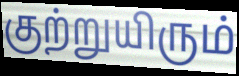
குற்றுயிரும்